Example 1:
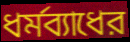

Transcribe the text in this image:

ধর্মব্যাধের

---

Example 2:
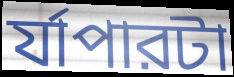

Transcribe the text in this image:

র্যাপারটা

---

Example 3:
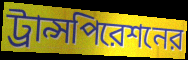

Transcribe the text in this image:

ট্রান্সপিরেশনের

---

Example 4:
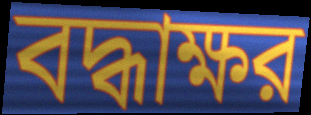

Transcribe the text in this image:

বদ্ধাক্ষর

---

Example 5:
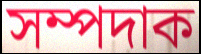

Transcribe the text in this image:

সম্পদাক